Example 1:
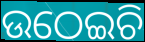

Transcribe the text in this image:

ଉଠେଇଚି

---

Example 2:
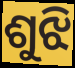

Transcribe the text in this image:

ଶୁଝି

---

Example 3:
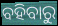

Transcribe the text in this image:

ବହିବାରୁ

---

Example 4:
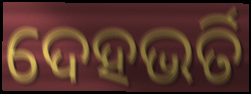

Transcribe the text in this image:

ଦେହଭର୍ତି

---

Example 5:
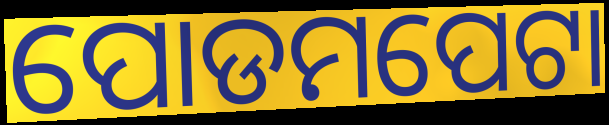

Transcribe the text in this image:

ପୋଡମପେଟା